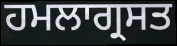
ਹਮਲਾਗ੍ਰਸਤ